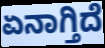
ಏನಾಗ್ತಿದೆ